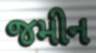
જમીન